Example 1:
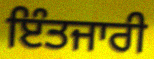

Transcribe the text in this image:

ਇੰਤਜਾਰੀ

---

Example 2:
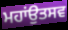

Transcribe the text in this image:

ਮਹਾਂਉਤਸਵ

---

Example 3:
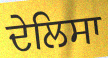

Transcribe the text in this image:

ਦੇਲਿਸਾ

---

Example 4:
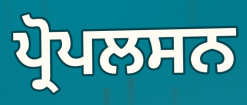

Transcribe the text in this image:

ਪ੍ਰੋਪਲਸਨ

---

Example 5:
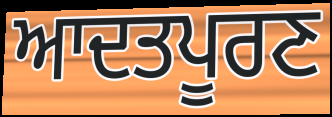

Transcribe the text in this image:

ਆਦਤਪੂਰਣ